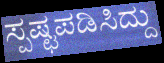
ಸ್ಪಷ್ಟಪಡಿಸಿದ್ದು